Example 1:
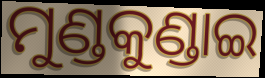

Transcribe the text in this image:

ମୁଣ୍ଡକୁଣ୍ଡାଇ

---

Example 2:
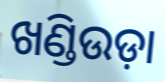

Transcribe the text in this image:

ଖଣ୍ଡିଉଡ଼ା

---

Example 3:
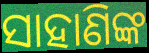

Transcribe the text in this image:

ସାହାଣିଙ୍କ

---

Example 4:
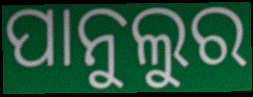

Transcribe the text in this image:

ପାନୁଲୁର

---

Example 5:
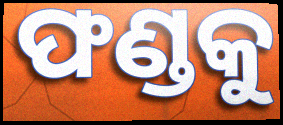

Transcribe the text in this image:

ଫଣ୍ଡକୁ